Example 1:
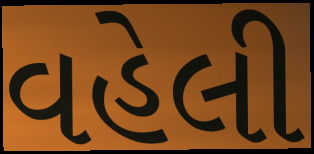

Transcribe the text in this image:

વહેલી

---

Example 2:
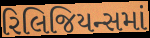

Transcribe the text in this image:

રિલિજિયન્સમાં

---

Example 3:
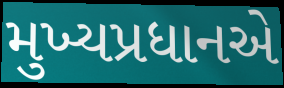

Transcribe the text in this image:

મુખ્યપ્રધાનએ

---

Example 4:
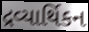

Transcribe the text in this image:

દ્રવ્યાર્થિકન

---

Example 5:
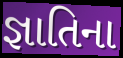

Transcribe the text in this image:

જ્ઞાતિના